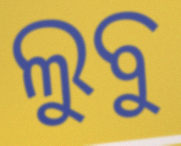
ଲୁବୁ